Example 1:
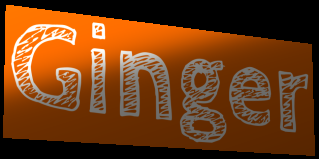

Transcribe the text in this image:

Ginger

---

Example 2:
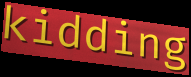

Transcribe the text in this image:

kidding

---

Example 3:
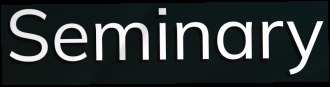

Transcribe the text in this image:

Seminary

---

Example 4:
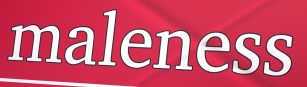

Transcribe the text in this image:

maleness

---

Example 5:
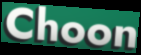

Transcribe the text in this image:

Choon